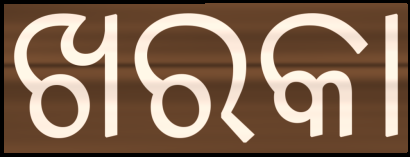
ଖରକା